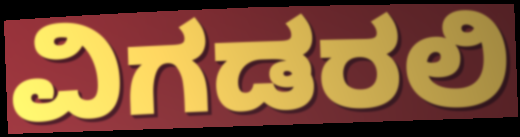
ವಿಗಡರಲಿ